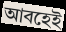
আবহেই